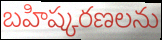
బహిష్కరణలను